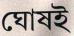
ঘোষই